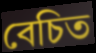
বেচিত